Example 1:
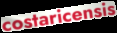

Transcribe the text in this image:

costaricensis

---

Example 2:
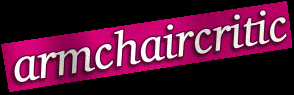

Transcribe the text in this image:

armchaircritic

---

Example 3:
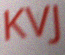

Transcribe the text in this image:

KVJ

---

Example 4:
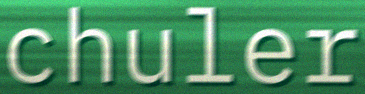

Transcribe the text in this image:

chuler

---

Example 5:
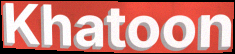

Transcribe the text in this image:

Khatoon